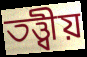
তত্ত্বীয়